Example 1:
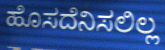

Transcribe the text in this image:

ಹೊಸದೆನಿಸಲಿಲ್ಲ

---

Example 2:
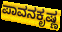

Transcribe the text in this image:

ಪಾವನಕೃಷ್ಣ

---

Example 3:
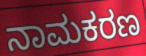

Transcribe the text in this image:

ನಾಮಕರಣ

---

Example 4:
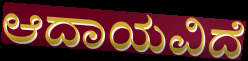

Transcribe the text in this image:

ಆದಾಯವಿದೆ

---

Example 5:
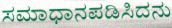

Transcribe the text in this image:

ಸಮಾಧಾನಪಡಿಸಿದನು